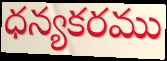
ధన్యకరము